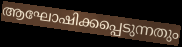
ആഘോഷിക്കപ്പെടുന്നതും